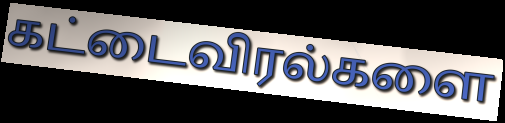
கட்டைவிரல்களை